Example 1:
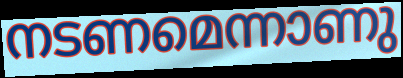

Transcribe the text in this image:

നടണമെന്നാണു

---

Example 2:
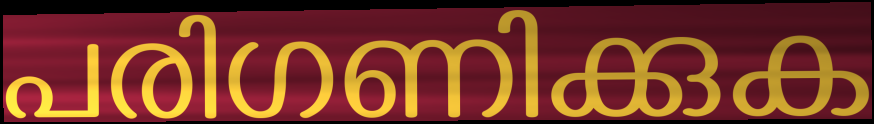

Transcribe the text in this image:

പരിഗണിക്കുക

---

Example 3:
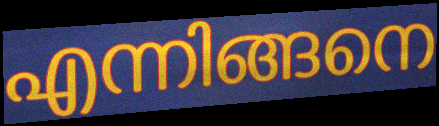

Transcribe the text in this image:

എന്നിങ്ങനെ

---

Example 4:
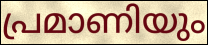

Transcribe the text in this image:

പ്രമാണിയും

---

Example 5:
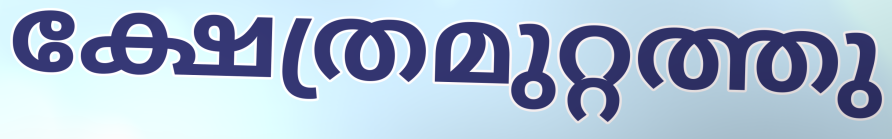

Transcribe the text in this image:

ക്ഷേത്രമുറ്റത്തു